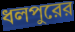
ধলপুরের